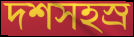
দশসহস্র